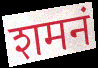
शमनं